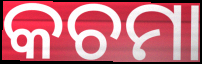
କଚମା